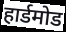
हार्डमोड